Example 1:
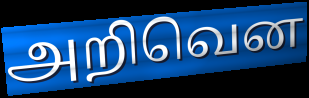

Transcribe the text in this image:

அறிவென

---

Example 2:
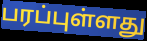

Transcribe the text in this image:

பரப்புள்ளது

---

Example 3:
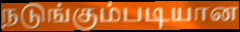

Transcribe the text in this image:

நடுங்கும்படியான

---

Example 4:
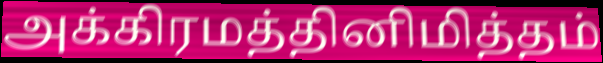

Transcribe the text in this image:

அக்கிரமத்தினிமித்தம்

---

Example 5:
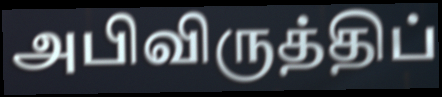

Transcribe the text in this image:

அபிவிருத்திப்